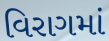
વિરાગમાં